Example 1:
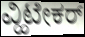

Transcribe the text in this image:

ವ್ಹಿಟೇಕರ್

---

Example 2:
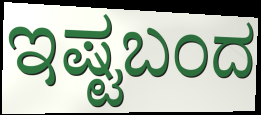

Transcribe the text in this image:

ಇಷ್ಟಬಂದ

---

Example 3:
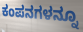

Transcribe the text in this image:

ಕಂಪನಗಳನ್ನೂ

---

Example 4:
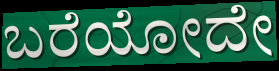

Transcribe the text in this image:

ಬರೆಯೋದೇ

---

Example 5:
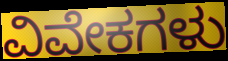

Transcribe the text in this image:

ವಿವೇಕಗಳು